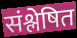
संश्लेषित